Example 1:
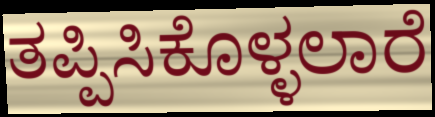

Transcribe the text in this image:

ತಪ್ಪಿಸಿಕೊಳ್ಳಲಾರೆ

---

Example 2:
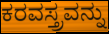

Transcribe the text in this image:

ಕರವಸ್ತ್ರವನ್ನು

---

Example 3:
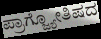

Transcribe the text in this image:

ಪ್ರಾಗ್ಜ್ಯೋತಿಷದ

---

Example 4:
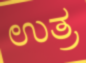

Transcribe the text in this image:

ಉತ್ರ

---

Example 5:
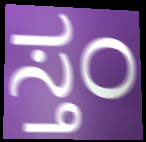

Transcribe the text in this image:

ಸ್ತಂ